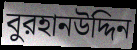
বুরহানউদ্দিন